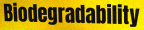
Biodegradability